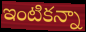
ఇంటికన్నా